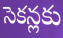
సెకన్లకు